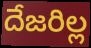
దేజరిల్ల